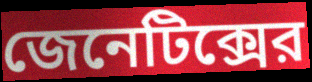
জেনেটিক্সের